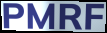
PMRF